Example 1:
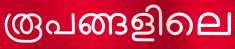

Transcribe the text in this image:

രൂപങ്ങളിലെ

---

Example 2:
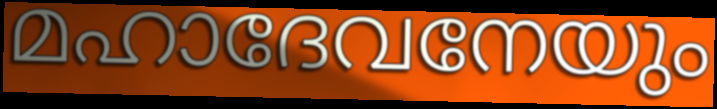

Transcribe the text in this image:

മഹാദേവനേയും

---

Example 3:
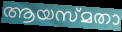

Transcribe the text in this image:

ആയസ്മതാ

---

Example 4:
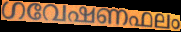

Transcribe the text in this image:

ഗവേഷണഫലം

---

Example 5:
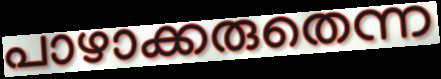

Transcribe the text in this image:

പാഴാക്കരുതെന്ന